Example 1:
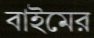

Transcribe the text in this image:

বাইমের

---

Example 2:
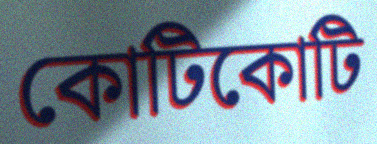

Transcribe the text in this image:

কোটিকোটি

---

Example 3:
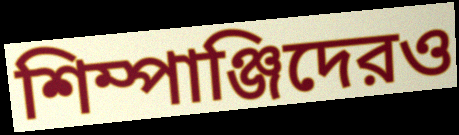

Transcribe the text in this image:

শিম্পাঞ্জিদেরও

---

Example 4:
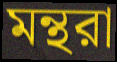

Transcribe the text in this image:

মন্থরা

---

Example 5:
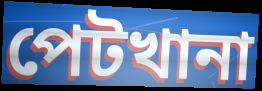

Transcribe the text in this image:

পেটখানা